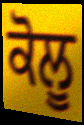
ਕੋਲੂ